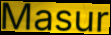
Masur